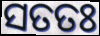
ସତତଃ